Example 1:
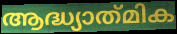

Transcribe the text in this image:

ആദ്ധ്യാത്‌മിക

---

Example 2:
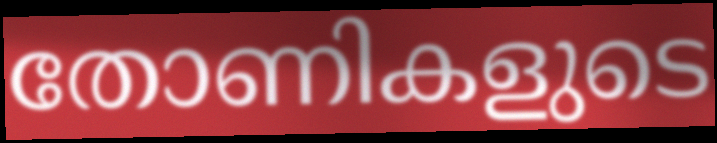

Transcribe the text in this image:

തോണികളുടെ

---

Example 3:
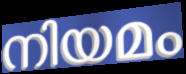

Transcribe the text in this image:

നിയമം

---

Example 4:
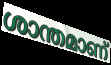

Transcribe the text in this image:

ശാന്തമാണ്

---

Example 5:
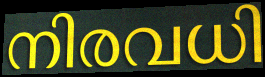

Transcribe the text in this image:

നിരവധി